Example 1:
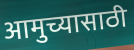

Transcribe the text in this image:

आमुच्यासाठी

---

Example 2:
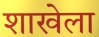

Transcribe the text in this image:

शाखेला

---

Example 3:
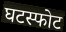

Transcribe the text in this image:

घटस्फोट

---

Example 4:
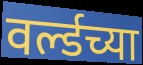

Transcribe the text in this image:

वर्ल्डच्या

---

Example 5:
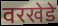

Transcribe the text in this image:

वरखेडे